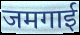
जमगाई